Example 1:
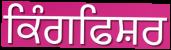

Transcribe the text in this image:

ਕਿੰਗਫਿਸ਼ਰ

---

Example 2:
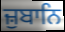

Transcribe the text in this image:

ਜ਼ੁਬਾਨਿ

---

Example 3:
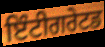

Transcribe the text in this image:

ਇੰਟੀਗਰੇਟਡ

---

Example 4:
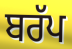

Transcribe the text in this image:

ਬਰੱਪ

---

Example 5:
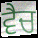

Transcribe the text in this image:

ਵੈਚ